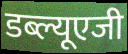
डब्ल्यूएजी